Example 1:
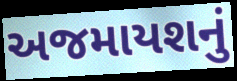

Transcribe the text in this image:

અજમાયશનું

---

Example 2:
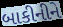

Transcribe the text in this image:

બાકીનીને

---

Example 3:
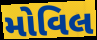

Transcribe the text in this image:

મોવિલ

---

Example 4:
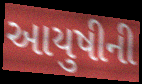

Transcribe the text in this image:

આયુષીની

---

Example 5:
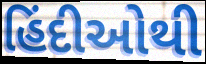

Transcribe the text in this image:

હિંદીઓથી